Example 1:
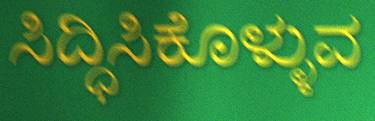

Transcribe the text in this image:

ಸಿದ್ಧಿಸಿಕೊಳ್ಳುವ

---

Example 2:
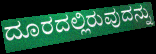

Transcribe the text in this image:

ದೂರದಲ್ಲಿರುವುದನ್ನು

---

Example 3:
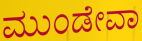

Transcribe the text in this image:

ಮುಂಡೇವಾ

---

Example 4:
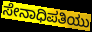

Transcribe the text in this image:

ಸೇನಾಧಿಪತಿಯು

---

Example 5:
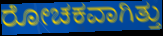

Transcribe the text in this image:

ರೋಚಕವಾಗಿತ್ತು